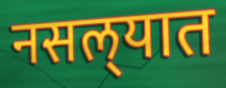
नसल्यात